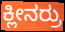
ಕ್ಲೀನರ್ರು